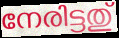
നേരിട്ടതു്